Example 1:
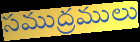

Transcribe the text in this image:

సముద్రములు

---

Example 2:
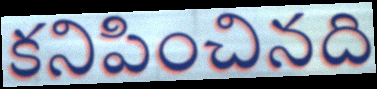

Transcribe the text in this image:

కనిపించినది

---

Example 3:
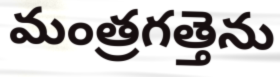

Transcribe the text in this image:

మంత్రగత్తెను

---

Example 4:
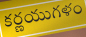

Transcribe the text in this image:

కర్ణయుగళం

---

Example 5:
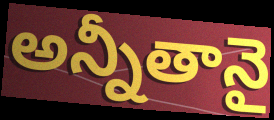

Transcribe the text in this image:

అన్నీతానై